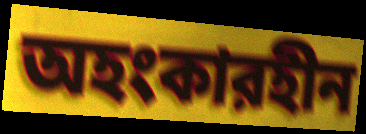
অহংকারহীন